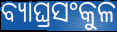
ବ୍ୟାଘ୍ରସଂକୁଳ